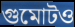
গুমোটও